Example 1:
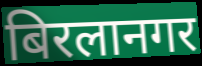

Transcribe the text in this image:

बिरलानगर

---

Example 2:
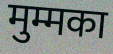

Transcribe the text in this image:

मुम्मका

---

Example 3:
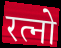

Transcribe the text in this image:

रत्नो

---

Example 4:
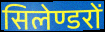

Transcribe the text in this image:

सिलेण्डरों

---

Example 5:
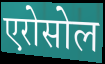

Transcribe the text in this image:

एरोसोल